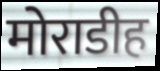
मोराडीह